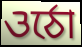
ওঠো